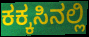
ಕಕ್ಕಸಿನಲ್ಲಿ